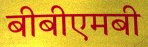
बीबीएमबी